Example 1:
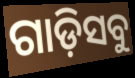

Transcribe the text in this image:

ଗାଡ଼ିସବୁ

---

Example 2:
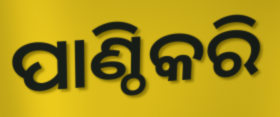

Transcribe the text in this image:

ପାଣ୍ଠିକରି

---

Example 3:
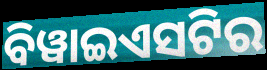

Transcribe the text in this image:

ବିୱାଇଏସଟିର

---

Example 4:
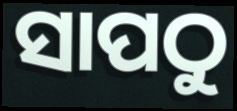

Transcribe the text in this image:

ସାପଠୁ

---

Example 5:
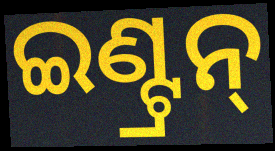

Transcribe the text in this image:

ଇଣ୍ଟ୍ରନ୍